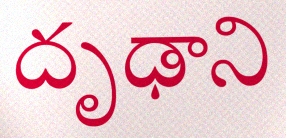
దృఢాని